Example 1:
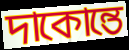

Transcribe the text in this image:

দাকোন্তে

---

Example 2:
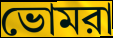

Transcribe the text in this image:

ভোমরা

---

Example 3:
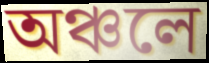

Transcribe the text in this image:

অঞ্চলে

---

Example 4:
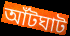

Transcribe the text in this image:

আঁটঘাট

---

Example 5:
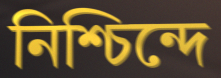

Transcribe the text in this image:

নিশ্চিন্দে